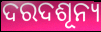
ଦରଦଶୂନ୍ୟ